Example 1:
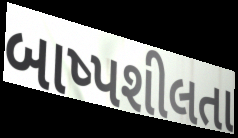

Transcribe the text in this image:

બાષ્પશીલતા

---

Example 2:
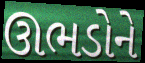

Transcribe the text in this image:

ઊભડોને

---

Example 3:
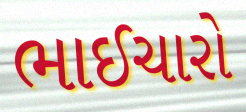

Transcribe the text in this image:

ભાઈચારો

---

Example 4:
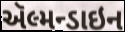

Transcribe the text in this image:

ઍલ્મન્ડાઇન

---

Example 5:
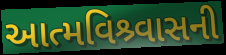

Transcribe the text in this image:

આત્મવિશ્ર્વાસની